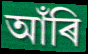
আঁৰি